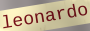
leonardo